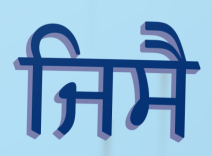
ਜਿਸੈ